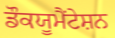
ਡੌਕਯੂਮੈਂਟੇਸ਼ਨ